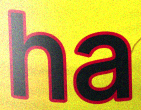
ha